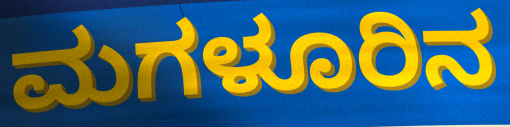
ಮಗಳೂರಿನ